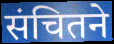
संचितने